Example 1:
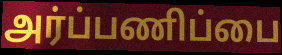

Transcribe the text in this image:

அர்ப்பணிப்பை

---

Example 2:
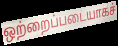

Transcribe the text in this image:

ஒற்றைப்படையாகச்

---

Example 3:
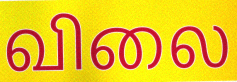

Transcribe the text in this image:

விலை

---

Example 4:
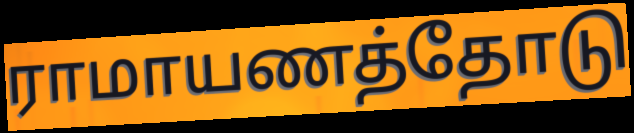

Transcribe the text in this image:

ராமாயணத்தோடு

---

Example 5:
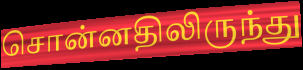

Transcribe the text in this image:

சொன்னதிலிருந்து